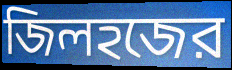
জিলহজের